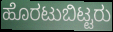
ಹೊರಟುಬಿಟ್ಟರು